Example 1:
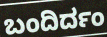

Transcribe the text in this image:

ಬಂದಿರ್ದಂ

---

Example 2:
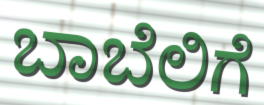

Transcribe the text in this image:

ಬಾಬೆಲಿಗೆ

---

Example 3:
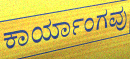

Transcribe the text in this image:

ಕಾರ್ಯಾಂಗವು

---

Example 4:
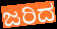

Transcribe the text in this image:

ಜರಿದ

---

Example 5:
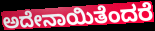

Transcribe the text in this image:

ಅದೇನಾಯಿತೆಂದರೆ